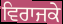
ਵਿਰਾਜਕੇ